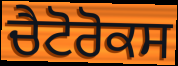
ਚੈਟੋਰੋਕਸ